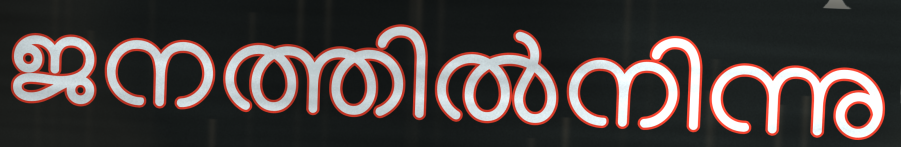
ജനത്തിൽനിന്നു